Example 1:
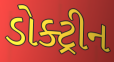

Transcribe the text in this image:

ડોક્ટ્રીન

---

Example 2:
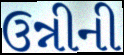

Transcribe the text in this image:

ઉન્નીની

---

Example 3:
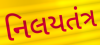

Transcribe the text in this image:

નિલયતંત્ર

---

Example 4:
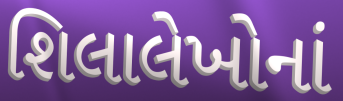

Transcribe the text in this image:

શિલાલેખોનાં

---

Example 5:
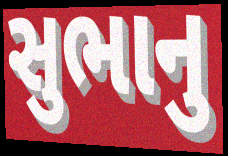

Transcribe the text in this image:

સુભાનુ